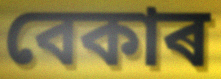
বেকাৰ